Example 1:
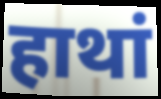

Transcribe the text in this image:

हाथां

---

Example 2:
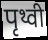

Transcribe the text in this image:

पृथ्‍वी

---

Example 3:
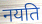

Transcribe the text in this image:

नयति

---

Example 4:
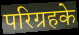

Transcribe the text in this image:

परिग्रहके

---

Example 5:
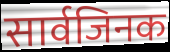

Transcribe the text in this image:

सार्वजिनक